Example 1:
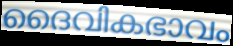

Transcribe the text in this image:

ദൈവികഭാവം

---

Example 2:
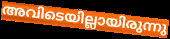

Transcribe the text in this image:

അവിടെയില്ലായിരുന്നു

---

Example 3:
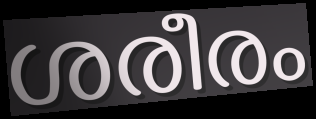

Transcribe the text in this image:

ശരീരം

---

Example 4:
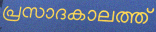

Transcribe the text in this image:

പ്രസാദകാലത്ത്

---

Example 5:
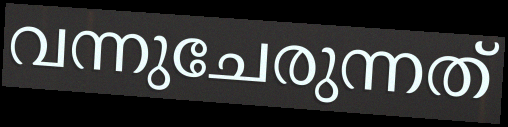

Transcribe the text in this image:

വന്നുചേരുന്നത്